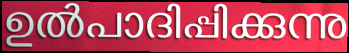
ഉൽപാദിപ്പിക്കുന്നു